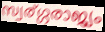
സ്വര്ഗ്ഗരാജ്യം